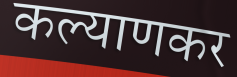
कल्याणकर